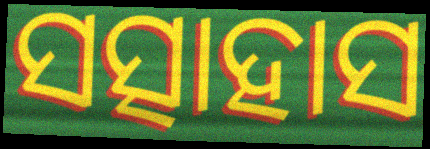
ସତ୍ସାହାସ